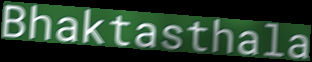
Bhaktasthala